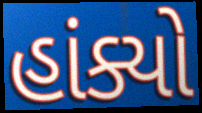
હાંક્યો